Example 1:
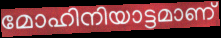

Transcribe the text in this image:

മോഹിനിയാട്ടമാണ്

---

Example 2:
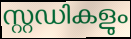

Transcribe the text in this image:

സ്റ്റഡികളും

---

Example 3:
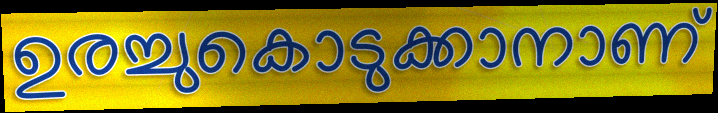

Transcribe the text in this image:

ഉരച്ചുകൊടുക്കാനാണ്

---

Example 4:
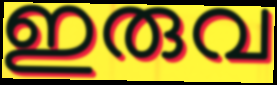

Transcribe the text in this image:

ഇരുവ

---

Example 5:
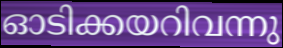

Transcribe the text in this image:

ഓടിക്കയറിവന്നു